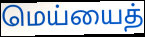
மெய்யைத்